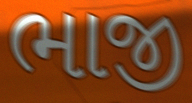
ભાજી